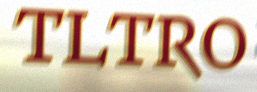
TLTRO